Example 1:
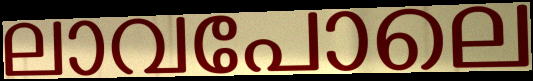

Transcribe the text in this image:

ലാവപോലെ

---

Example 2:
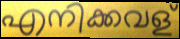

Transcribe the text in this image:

എനിക്കവള്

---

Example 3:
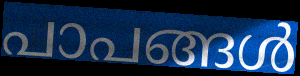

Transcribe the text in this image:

പാപങ്ങൾ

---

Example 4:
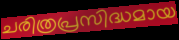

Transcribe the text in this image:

ചരിത്രപ്രസിദ്ധമായ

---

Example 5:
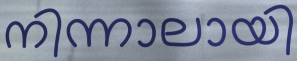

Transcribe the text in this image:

നിന്നാലായി